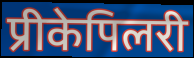
प्रीकेपिलरी